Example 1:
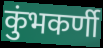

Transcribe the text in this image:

कुंभकर्णी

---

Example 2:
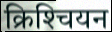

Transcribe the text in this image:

क्रिश्‍चियन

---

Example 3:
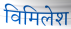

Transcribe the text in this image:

विमिलेश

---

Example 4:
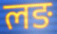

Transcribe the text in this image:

लङ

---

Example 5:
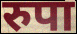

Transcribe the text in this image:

रुपा